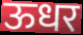
ऊधर